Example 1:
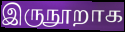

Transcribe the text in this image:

இருநூறாக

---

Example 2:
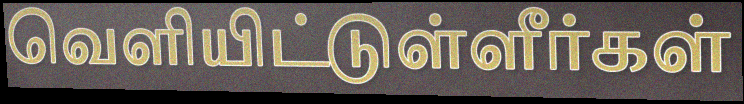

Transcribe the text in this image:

வெளியிட்டுள்ளீர்கள்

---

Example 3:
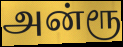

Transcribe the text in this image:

அன்ரூ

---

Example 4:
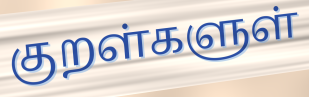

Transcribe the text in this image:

குறள்களுள்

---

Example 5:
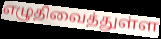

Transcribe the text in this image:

எழுதிவைத்துள்ள